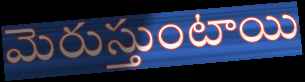
మెరుస్తుంటాయి